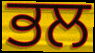
ਭਲ